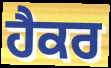
ਹੈਕਰ